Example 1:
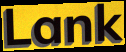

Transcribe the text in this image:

Lank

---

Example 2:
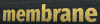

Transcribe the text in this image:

membrane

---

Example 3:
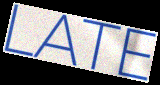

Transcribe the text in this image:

LATE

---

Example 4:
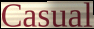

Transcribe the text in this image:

Casual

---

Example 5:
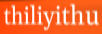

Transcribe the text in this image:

thiliyithu